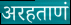
अरहताणं